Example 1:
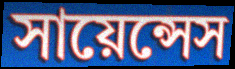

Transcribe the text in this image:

সায়েন্সেস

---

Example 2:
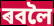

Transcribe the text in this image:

ৰবলৈ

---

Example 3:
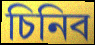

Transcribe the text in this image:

চিনিব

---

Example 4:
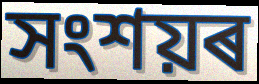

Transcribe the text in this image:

সংশয়ৰ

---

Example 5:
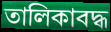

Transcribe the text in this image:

তালিকাবদ্ধ